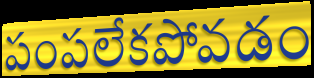
పంపలేకపోవడం